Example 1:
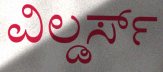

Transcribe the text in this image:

ವಿಲ್ಡರ್ಸ್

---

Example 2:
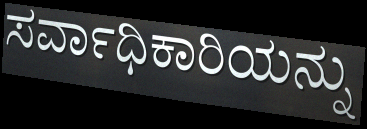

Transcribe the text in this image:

ಸರ್ವಾಧಿಕಾರಿಯನ್ನು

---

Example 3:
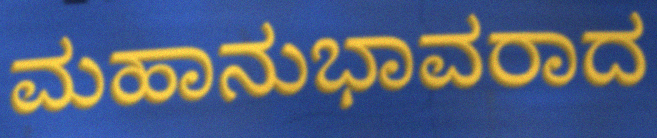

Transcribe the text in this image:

ಮಹಾನುಭಾವರಾದ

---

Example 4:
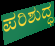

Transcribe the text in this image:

ಪರಿಶುದ್ಧ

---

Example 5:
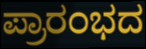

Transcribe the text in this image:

ಪ್ರಾರಂಭದ